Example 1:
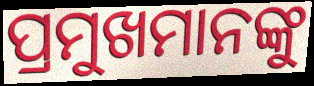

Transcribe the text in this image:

ପ୍ରମୁଖମାନଙ୍କୁ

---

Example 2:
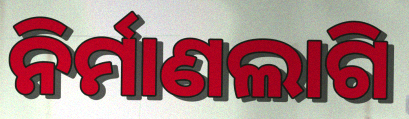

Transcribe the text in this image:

ନିର୍ମାଣଲାଗି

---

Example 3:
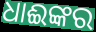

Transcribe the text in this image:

ଧାଈଙ୍କର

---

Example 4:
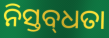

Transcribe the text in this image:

ନିସ୍ତବ୍‌ଧତା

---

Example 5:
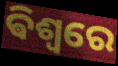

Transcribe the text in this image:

ଵିଶ୍ଵରେ